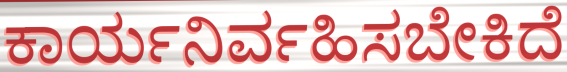
ಕಾರ್ಯನಿರ್ವಹಿಸಬೇಕಿದೆ